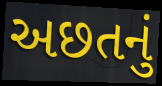
અછતનું